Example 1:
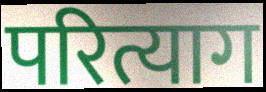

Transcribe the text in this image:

परित्याग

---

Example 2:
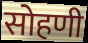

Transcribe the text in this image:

सोहणी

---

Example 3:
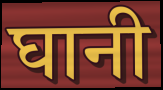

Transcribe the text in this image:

घानी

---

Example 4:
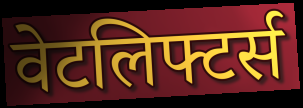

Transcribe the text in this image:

वेटलिफ्टर्स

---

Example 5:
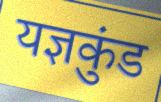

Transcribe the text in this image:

यज्ञकुंड